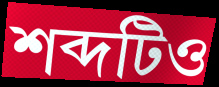
শব্দটিও